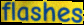
flashes